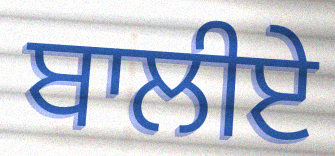
ਬਾਲੀਏ